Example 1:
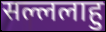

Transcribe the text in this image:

सल्ललाहु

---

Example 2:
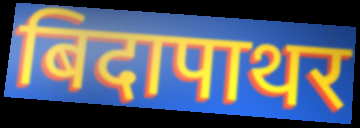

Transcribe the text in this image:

बिदापाथर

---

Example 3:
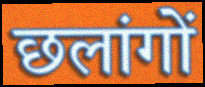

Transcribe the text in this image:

छलांगों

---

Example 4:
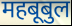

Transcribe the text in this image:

महबूबुल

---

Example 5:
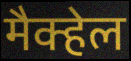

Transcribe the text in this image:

मैक्हेल